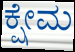
ಕ್ಷೇಮ